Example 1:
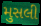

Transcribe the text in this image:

મુસલી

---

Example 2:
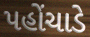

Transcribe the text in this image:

પહોંચાડે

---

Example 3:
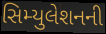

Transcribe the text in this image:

સિમ્યુલેશનની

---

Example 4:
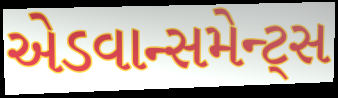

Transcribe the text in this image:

એડવાન્સમેન્ટ્સ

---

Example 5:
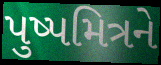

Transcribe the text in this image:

પુષ્પમિત્રને